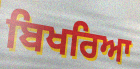
ਬਿਖਰਿਆ